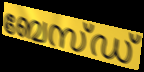
ബേസ്ഡ്